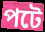
পটে